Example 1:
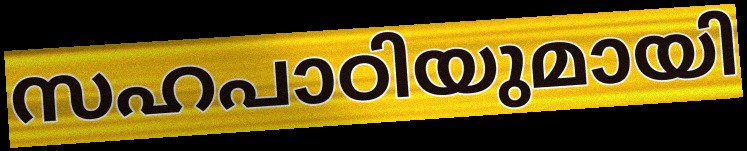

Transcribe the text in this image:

സഹപാഠിയുമായി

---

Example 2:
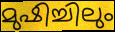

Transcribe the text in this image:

മുഷിച്ചിലും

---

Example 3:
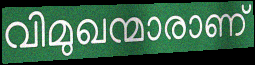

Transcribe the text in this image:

വിമുഖന്മാരാണ്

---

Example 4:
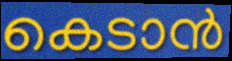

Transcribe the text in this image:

കെടാൻ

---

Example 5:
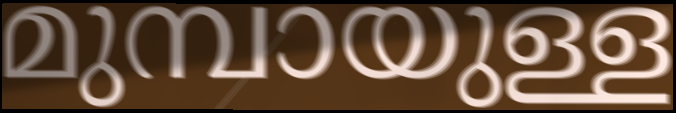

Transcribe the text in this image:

മുമ്പായുള്ള